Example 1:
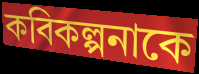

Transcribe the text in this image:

কবিকল্পনাকে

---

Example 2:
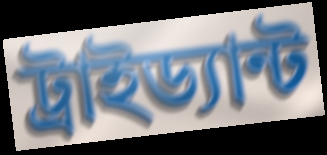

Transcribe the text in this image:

ট্রাইড্যান্ট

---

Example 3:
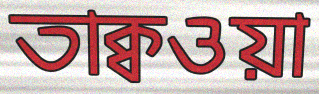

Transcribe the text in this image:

তাক্বওয়া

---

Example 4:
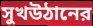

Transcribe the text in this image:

সুখউঠানের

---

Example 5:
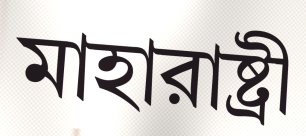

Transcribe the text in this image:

মাহারাষ্ট্রী